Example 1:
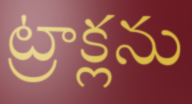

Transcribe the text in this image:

ట్రాక్లను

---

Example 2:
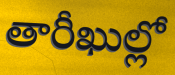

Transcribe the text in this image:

తారీఖుల్లో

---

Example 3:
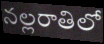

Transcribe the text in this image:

నల్లరాతిలో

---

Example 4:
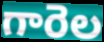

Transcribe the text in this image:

గారెల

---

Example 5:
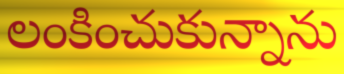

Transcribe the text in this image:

లంకించుకున్నాను